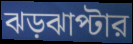
ঝড়ঝাপ্টার